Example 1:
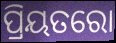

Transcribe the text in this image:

ପ୍ରିୟତରୋ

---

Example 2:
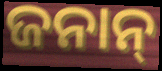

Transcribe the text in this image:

ଜନାନ୍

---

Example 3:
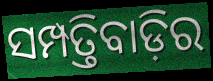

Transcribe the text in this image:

ସମ୍ପତ୍ତିବାଡ଼ିର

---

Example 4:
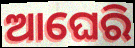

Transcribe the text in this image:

ଆଘେରି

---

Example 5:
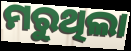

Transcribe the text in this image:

ମରୁଥିଲା